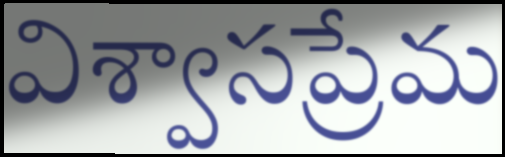
విశ్వాసప్రేమ